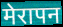
मेरापन